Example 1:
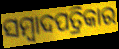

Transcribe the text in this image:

ସମ୍ବାଦପତ୍ରିକାର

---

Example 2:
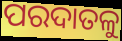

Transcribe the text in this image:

ପରଦାତଳୁ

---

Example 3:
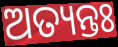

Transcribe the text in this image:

ଅତ୍ୟନ୍ତଃ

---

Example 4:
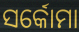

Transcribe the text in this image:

ସର୍କୋମା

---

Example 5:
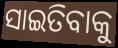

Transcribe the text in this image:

ସାଇତିବାକୁ